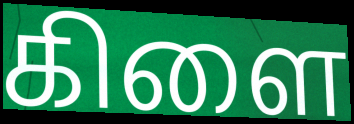
கிளை